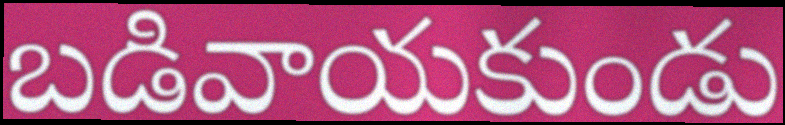
బడివాయకుండు